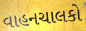
વાહનચાલકો